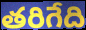
తరిగేది